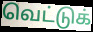
வெட்டுக்